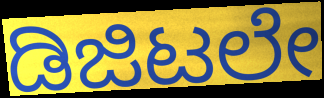
ಡಿಜಿಟಲೇ